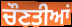
ਚੌਣਤੀਆਂ